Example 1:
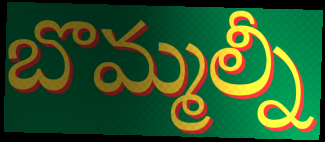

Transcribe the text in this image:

బొమ్మల్నీ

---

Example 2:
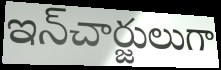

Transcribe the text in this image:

ఇన్‌చార్జులుగా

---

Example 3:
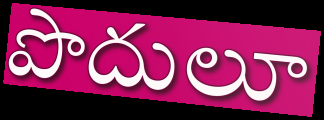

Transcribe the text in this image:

పొదులూ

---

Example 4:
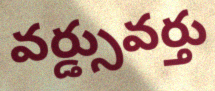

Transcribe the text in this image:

వర్డ్సువర్తు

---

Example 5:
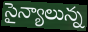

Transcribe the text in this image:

సైన్యాలున్న